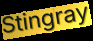
Stingray